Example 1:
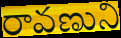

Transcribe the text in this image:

రావణుని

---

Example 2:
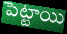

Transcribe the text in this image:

పెట్టాయి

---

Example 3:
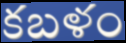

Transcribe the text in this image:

కబళం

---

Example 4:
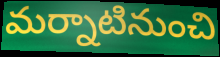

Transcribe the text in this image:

మర్నాటినుంచి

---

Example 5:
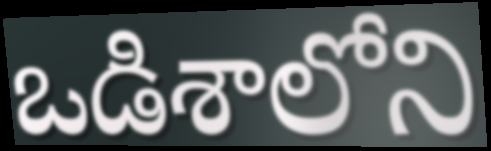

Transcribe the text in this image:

ఒడిశాలోని